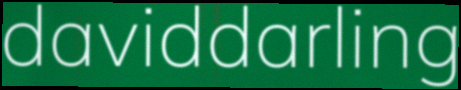
daviddarling